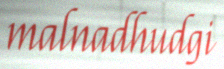
malnadhudgi